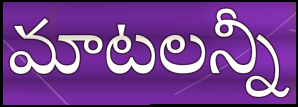
మాటలన్నీ